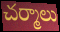
చర్మాలు